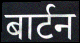
बार्टन